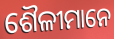
ଶୈଳୀମାନେ